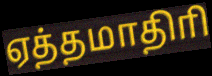
ஏத்தமாதிரி